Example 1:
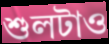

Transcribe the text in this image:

শুলটাও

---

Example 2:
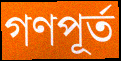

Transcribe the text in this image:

গণপূর্ত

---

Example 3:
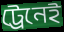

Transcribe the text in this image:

ট্রেনেই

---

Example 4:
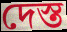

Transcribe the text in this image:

দেস্ত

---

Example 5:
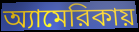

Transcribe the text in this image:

অ্যামেরিকায়